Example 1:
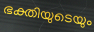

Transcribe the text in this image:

ഭക്തിയുടെയും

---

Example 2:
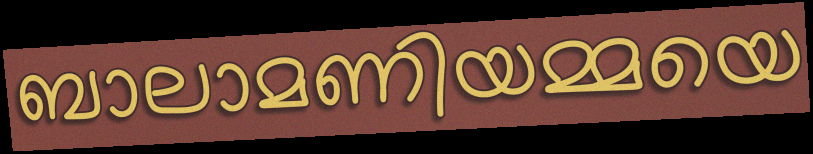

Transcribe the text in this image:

ബാലാമണിയമ്മയെ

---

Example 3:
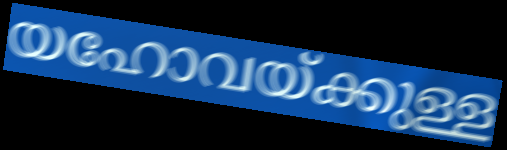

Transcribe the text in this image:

യഹോവയ്ക്കുള്ള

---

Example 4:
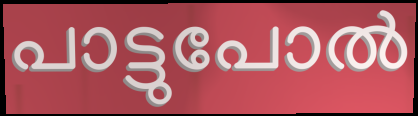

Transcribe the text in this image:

പാട്ടുപോൽ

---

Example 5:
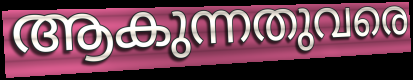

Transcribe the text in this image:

ആകുന്നതുവരെ